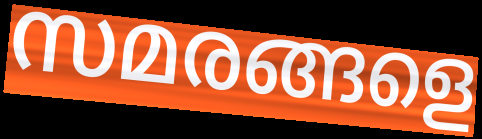
സമരങ്ങളെ